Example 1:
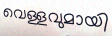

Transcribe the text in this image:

വെള്ളവുമായി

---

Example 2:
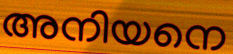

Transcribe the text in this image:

അനിയനെ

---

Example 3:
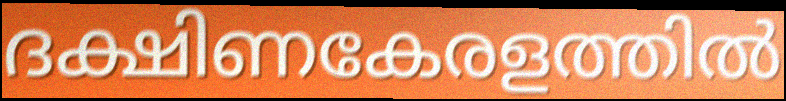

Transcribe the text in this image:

ദക്ഷിണകേരളത്തിൽ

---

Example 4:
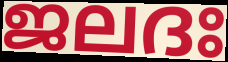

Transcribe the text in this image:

ജലദഃ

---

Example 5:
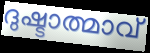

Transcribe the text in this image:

ദുഷ്ടാത്മാവ്